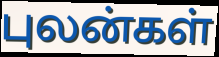
புலன்கள்